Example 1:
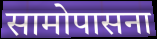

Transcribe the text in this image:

सामोपासना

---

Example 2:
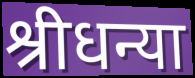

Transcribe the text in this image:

श्रीधन्या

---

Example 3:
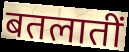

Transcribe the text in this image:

बतलातीं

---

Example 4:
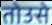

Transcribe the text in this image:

तोउसे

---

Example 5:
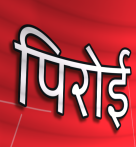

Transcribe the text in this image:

पिरोई